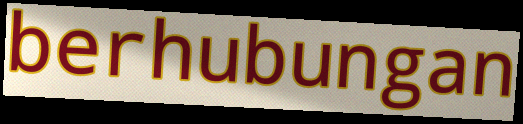
berhubungan